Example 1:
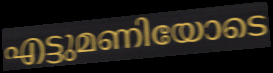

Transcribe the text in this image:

എട്ടുമണിയോടെ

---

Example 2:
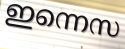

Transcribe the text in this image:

ഇന്നെസ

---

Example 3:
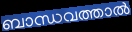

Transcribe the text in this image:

ബാന്ധവത്താൽ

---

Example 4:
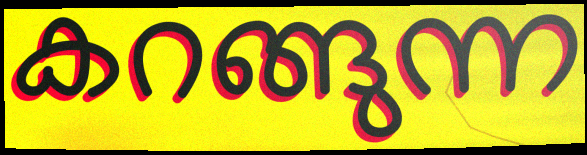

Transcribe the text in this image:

കറങ്ങുന്ന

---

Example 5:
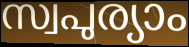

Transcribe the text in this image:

സ്വപുര്യാം